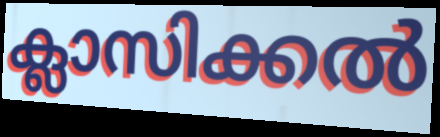
ക്ലാസിക്കൽ